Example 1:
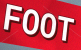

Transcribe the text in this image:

FOOT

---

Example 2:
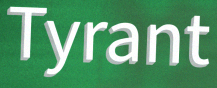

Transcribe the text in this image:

Tyrant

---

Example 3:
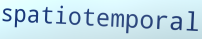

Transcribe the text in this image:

spatiotemporal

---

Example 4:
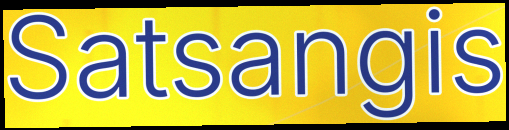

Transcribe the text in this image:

Satsangis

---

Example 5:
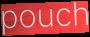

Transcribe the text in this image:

pouch